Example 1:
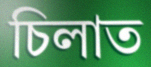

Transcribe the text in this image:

চিলাত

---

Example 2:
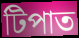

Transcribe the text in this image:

টিপাত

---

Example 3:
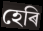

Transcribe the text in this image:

হেৰি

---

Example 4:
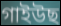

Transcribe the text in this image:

গাইউছ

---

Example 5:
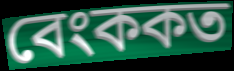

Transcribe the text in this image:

বেংককত